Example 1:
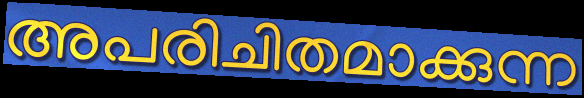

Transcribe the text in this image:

അപരിചിതമാക്കുന്ന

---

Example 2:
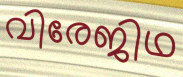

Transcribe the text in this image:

വിരേജിഥ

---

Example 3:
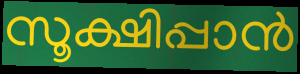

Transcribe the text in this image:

സൂക്ഷിപ്പാൻ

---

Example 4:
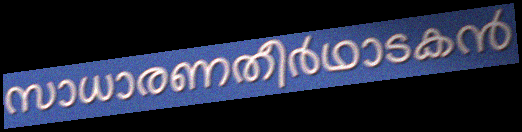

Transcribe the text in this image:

സാധാരണതീർഥാടകൻ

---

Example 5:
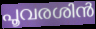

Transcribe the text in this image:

പൂവരശിൻ